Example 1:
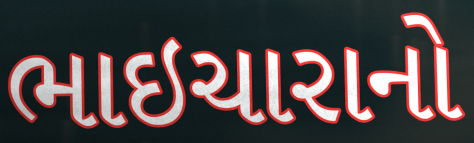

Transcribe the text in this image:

ભાઇચારાનો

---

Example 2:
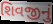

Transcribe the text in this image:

શિવજીનું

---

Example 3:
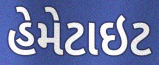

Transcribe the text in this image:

હેમેટાઇટ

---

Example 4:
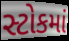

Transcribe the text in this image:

સ્ટોકમાં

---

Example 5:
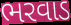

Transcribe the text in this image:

ભરવાડ